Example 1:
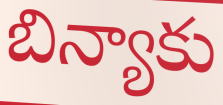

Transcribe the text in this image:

బిన్యాకు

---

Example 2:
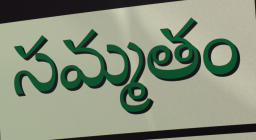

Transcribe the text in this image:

సమ్మతం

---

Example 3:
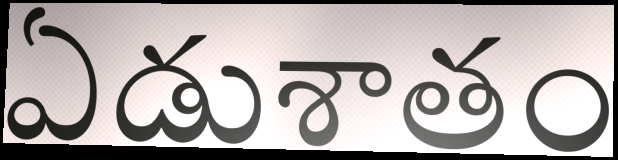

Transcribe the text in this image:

ఏడుశాతం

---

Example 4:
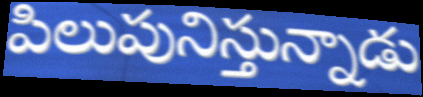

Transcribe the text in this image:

పిలుపునిస్తున్నాడు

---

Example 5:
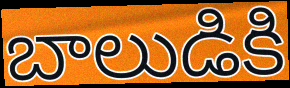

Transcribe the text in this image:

బాలుడికి